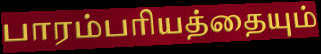
பாரம்பரியத்தையும்